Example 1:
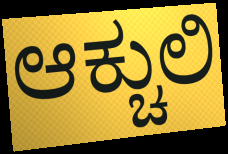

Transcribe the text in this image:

ಆಕ್ಚುಲಿ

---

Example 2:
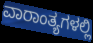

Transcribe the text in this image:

ವಾರಾಂತ್ಯಗಳಲ್ಲಿ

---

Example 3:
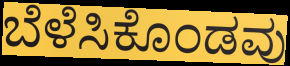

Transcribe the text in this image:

ಬೆಳೆಸಿಕೊಂಡವು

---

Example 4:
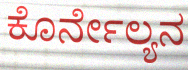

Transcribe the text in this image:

ಕೊರ್ನೇಲ್ಯನ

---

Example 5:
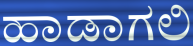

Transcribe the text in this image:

ಹಾಡಾಗಲಿ